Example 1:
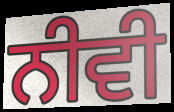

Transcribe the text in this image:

ਨੀਵੀ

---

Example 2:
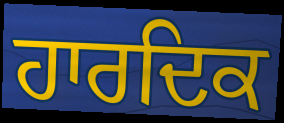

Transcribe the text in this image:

ਹਾਰਦਿਕ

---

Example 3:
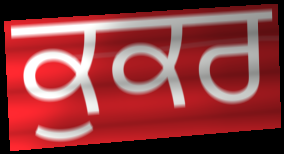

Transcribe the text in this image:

ਕੁਕਰ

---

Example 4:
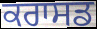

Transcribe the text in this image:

ਕਰਾਸਡ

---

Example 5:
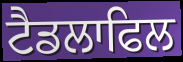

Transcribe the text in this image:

ਟੈਡਲਾਫਿਲ